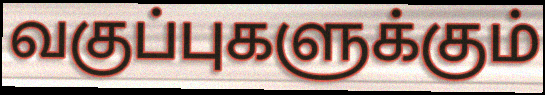
வகுப்புகளுக்கும்